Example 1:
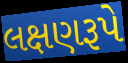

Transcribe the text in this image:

લક્ષણરૂપે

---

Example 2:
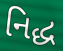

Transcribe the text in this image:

નિદ્ધ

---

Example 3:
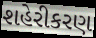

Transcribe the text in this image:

શહેરીકરણ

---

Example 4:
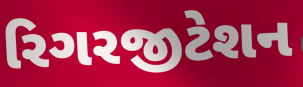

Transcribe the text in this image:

રિગરજીટેશન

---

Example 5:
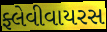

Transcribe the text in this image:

ફ્લેવીવાયરસ